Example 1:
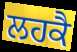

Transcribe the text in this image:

ਲਹਕੈ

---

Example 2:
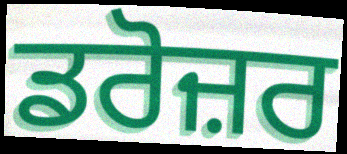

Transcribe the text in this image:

ਡਰੋਜ਼ਰ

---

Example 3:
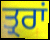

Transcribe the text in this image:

ਤ੍ਰਰਾਂ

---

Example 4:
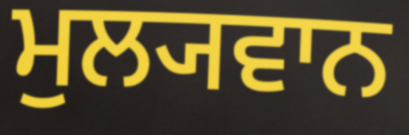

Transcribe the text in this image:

ਮੁਲ੍ਯਵਾਨ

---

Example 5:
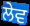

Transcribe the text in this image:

ਲੇਵ